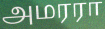
அமரரா